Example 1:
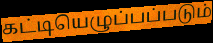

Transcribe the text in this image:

கட்டியெழுப்பப்படும்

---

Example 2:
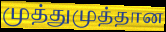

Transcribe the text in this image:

முத்துமுத்தான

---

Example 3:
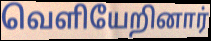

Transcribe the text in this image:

வெளியேறினார்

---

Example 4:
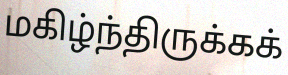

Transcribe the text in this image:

மகிழ்ந்திருக்கக்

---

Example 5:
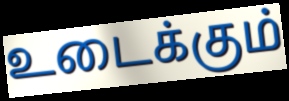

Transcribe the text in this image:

உடைக்கும்